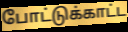
போட்டுக்காட்ட